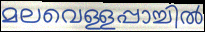
മലവെള്ളപ്പാച്ചിൽ